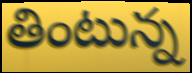
తింటున్న